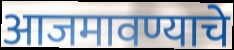
आजमावण्याचे